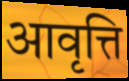
आवृत्ति